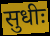
सुधीः